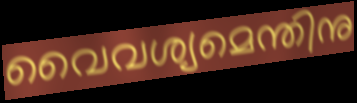
വൈവശ്യമെന്തിനു